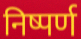
निष्पर्ण